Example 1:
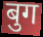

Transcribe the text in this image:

बुग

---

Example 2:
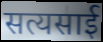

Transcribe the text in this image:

सत्यसाई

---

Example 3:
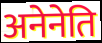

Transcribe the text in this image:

अनेनेति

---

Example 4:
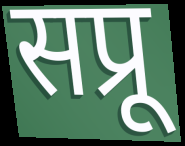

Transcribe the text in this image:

सप्रू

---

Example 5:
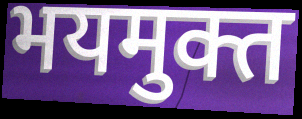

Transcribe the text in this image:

भयमुक्‍त